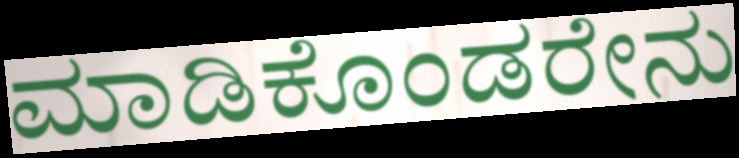
ಮಾಡಿಕೊಂಡರೇನು